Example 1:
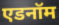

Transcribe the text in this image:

एडनॉम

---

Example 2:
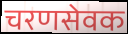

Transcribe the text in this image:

चरणसेवक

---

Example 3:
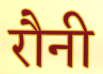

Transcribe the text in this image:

रौनी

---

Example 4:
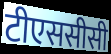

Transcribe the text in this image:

टीएससीसी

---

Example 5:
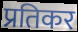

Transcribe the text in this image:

प्रतिकर